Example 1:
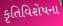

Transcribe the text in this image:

કૃતિવિશેષના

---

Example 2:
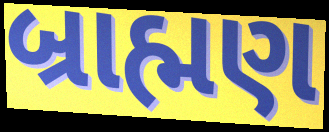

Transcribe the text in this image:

બ્રાહ્મણ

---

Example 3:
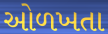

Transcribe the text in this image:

ઓળખતા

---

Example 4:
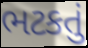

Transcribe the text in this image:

ભટકતું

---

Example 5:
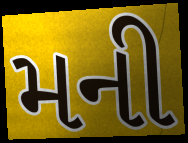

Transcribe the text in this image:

મની